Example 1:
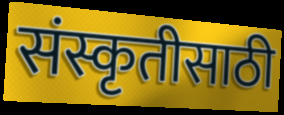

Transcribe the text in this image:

संस्कृतीसाठी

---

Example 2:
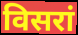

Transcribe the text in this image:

विसरां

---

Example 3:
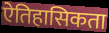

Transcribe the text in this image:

ऐतिहासिकता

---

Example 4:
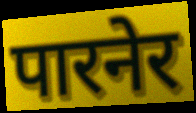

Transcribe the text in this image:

पारनेर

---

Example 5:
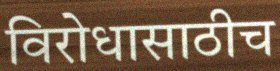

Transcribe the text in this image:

विरोधासाठीच